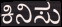
ಕಿನಿಸು